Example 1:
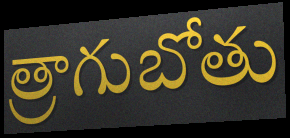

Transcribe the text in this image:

త్రాగుబోతు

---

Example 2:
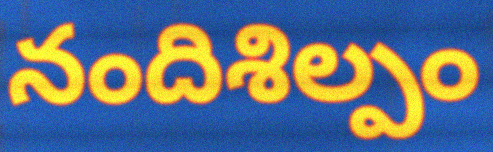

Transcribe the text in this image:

నందిశిల్పం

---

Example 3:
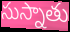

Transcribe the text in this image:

సుస్నాతు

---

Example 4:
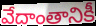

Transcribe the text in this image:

వేదాంతానికీ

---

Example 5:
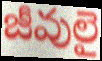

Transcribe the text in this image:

జీవులై